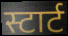
स्टार्ट